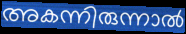
അകന്നിരുന്നാൽ